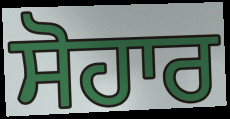
ਸੋਹਾਰ